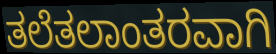
ತಲೆತಲಾಂತರವಾಗಿ